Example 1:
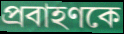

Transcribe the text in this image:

প্রবাহণকে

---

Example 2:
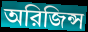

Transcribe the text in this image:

অরিজিন্স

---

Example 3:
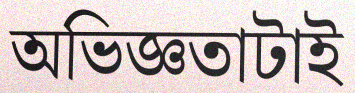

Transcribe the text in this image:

অভিজ্ঞতাটাই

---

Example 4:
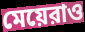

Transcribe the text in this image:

মেয়েরাও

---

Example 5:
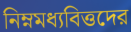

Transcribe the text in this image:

নিম্নমধ্যবিত্তদের